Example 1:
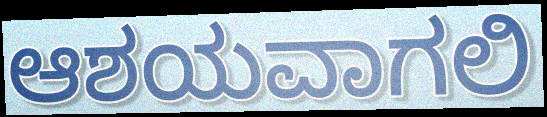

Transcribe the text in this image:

ಆಶಯವಾಗಲಿ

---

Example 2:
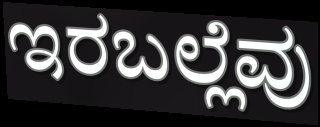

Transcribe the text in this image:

ಇರಬಲ್ಲೆವು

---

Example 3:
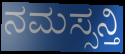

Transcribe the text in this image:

ನಮಸ್ಸನ್ತಿ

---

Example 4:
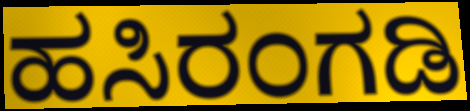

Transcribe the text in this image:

ಹಸಿರಂಗಡಿ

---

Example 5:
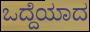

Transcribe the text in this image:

ಒದ್ದೆಯಾದ